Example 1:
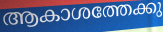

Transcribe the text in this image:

ആകാശത്തേക്കു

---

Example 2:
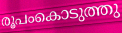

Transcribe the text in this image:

രൂപംകൊടുത്തു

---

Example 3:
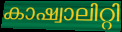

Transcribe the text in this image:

കാഷ്വാലിറ്റി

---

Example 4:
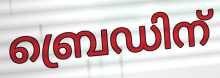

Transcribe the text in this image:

ബ്രെഡിന്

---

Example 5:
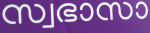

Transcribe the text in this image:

സ്വഭാസാ